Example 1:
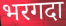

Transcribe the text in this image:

भरगदा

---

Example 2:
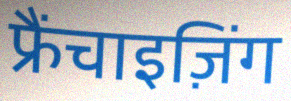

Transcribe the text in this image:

फ्रैंचाइज़िंग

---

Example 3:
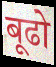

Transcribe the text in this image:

बूढो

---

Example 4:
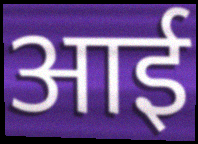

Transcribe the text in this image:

आई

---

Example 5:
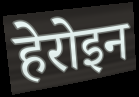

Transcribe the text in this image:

हेरोइन